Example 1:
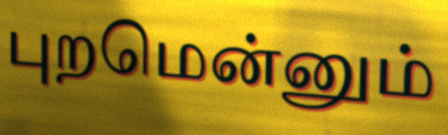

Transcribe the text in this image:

புறமென்னும்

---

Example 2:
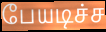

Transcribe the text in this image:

பேயடிச்ச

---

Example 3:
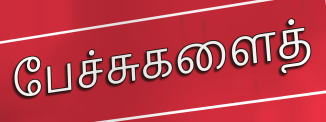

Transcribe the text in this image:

பேச்சுகளைத்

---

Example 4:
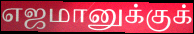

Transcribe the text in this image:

எஜமானுக்குக்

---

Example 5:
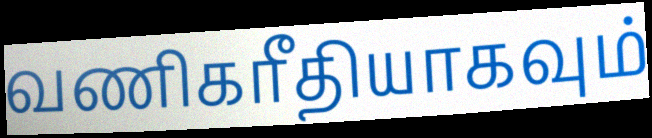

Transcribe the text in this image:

வணிகரீதியாகவும்